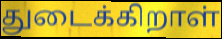
துடைக்கிறாள்